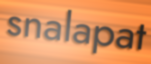
snalapat